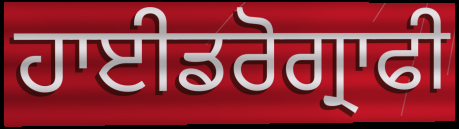
ਹਾਈਡਰੋਗ੍ਰਾਫੀ